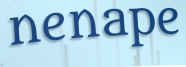
nenape